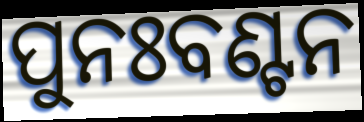
ପୁନଃବଣ୍ଟନ